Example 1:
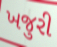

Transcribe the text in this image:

ખજુરી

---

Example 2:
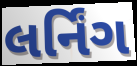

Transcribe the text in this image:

લર્નિંગ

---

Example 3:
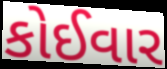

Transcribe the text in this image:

કોઈવાર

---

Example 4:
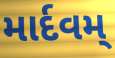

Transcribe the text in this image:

માર્દવમ્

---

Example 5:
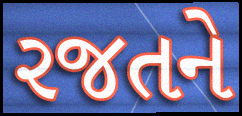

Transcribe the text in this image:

રજતને